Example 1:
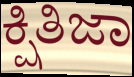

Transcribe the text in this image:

ಕ್ಷಿತಿಜಾ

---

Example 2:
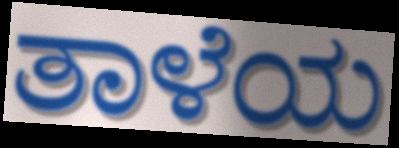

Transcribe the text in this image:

ತಾಳೆಯ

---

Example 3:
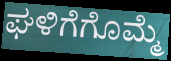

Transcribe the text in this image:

ಘಳಿಗೆಗೊಮ್ಮೆ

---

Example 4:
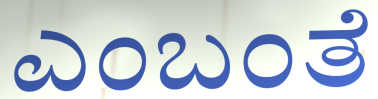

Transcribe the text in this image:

ಎಂಬಂತೆ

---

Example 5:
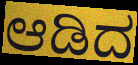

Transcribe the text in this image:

ಆಡಿದ